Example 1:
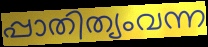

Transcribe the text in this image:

പ്പാതിത്യംവന്ന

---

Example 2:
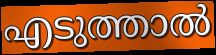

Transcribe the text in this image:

എടുത്താൽ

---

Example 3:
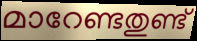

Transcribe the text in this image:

മാറേണ്ടതുണ്ട്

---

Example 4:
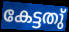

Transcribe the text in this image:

കേട്ടതു്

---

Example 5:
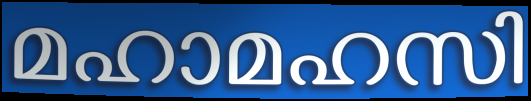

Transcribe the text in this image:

മഹാമഹസി